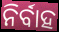
ନିର୍ବାହ